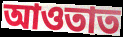
আওতাত